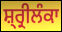
ਸ਼੍ਰ੍ਰੀਲੰਕਾ